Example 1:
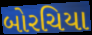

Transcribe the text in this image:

બોરચિયા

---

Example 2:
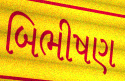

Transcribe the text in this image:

બિભીષણ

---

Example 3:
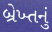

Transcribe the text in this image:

બ્રેખ્તનું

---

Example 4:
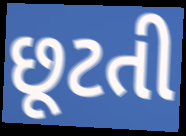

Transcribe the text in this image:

છૂટતી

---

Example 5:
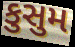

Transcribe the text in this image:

કુસુમ